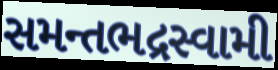
સમન્તભદ્રસ્વામી